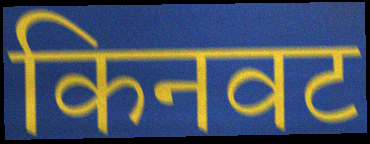
किनवट